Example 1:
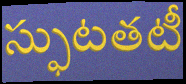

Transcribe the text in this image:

స్ఫుటతటీ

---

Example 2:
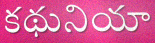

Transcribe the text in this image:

కథునియా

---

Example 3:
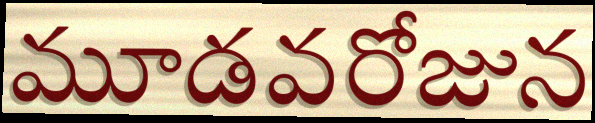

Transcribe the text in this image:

మూడవరోజున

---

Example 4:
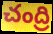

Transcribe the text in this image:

చంద్రి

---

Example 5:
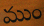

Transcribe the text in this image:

ముం